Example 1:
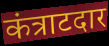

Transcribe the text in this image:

कंत्राटदार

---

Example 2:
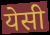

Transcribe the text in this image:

येसी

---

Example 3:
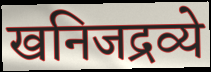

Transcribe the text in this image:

खनिजद्रव्ये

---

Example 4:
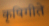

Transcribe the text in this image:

कृषिगीते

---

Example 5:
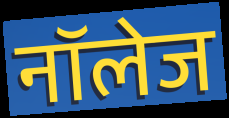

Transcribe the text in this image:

नॉलेज